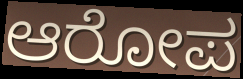
ಆರೋಪ